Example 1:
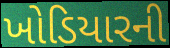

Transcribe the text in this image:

ખોડિયારની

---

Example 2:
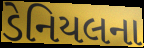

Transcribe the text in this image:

ડેનિયલના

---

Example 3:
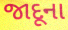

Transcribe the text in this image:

જાદૂના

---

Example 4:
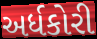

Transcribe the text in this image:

અર્ધકોરી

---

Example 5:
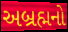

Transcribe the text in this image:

અબ્રહ્મનો